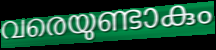
വരെയുണ്ടാകും